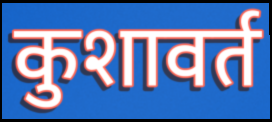
कुशावर्त